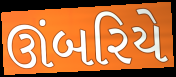
ઊંબરિયે